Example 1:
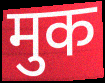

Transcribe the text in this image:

मुक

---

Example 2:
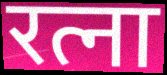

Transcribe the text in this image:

रत्ना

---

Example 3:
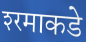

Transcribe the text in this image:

श्रमाकडे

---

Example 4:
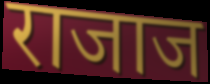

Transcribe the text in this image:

राजाज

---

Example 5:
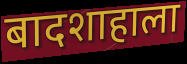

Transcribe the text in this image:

बादशाहाला